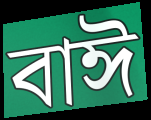
বাঈ